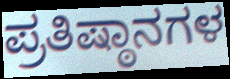
ಪ್ರತಿಷ್ಠಾನಗಳ